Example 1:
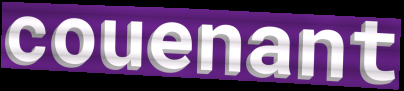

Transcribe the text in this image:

couenant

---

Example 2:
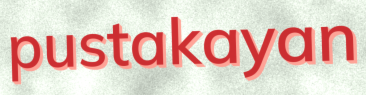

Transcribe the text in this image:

pustakayan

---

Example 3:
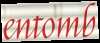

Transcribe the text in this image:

entomb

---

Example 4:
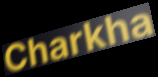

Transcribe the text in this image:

Charkha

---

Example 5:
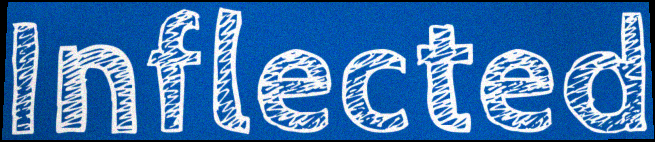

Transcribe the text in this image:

Inflected